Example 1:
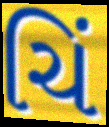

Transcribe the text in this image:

ચિં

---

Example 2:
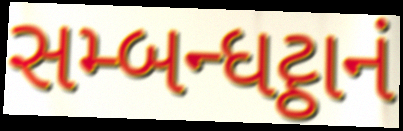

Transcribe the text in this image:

સમ્બન્ધટ્ઠાનં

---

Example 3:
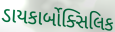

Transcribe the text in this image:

ડાયકાર્બોક્સિલિક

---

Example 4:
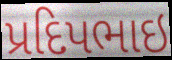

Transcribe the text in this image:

પ્રદિપભાઇ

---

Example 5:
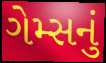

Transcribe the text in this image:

ગેમ્સનું